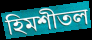
হিমশীতল